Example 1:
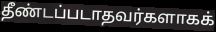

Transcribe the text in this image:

தீண்டப்படாதவர்களாகக்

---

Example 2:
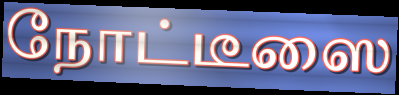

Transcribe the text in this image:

நோட்டீஸை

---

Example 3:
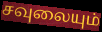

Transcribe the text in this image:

சவுலையும்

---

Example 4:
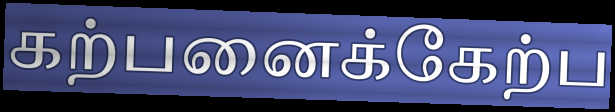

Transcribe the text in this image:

கற்பனைக்கேற்ப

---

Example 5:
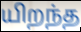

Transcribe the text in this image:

யிறந்த